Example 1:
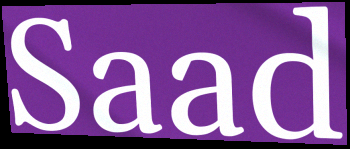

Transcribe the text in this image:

Saad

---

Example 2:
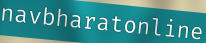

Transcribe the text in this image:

navbharatonline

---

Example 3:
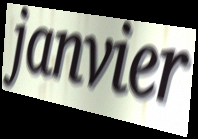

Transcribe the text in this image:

janvier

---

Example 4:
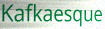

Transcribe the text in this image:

Kafkaesque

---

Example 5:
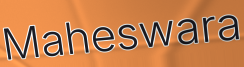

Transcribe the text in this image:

Maheswara